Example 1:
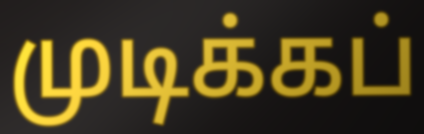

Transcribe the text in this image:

முடிக்கப்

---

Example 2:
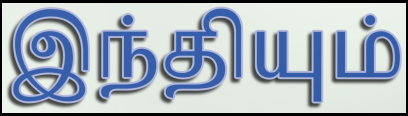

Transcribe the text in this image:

இந்தியும்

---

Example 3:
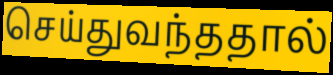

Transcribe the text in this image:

செய்துவந்ததால்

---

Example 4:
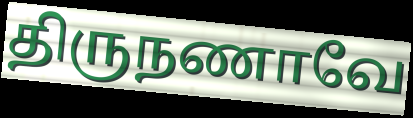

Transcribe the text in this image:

திருநணாவே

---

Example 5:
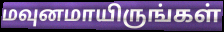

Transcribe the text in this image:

மவுனமாயிருங்கள்